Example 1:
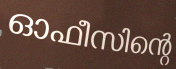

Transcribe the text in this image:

ഓഫീസിന്റെ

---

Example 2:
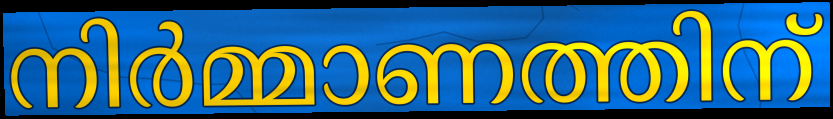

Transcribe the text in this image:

നിർമ്മാണത്തിന്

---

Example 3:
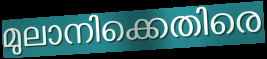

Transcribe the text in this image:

മുലാനിക്കെതിരെ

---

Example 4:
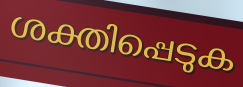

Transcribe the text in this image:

ശക്തിപ്പെടുക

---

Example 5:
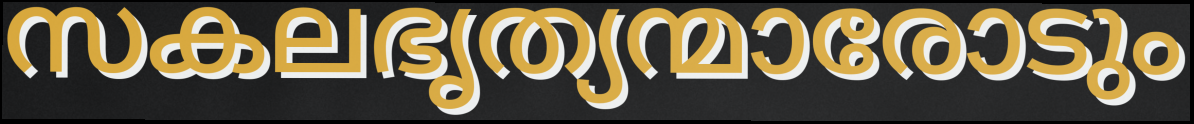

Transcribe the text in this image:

സകലഭൃത്യന്മാരോടും